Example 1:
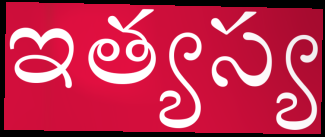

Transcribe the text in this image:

ఇత్యస్య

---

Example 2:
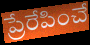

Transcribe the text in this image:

ప్రేరేపించే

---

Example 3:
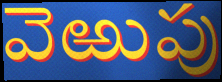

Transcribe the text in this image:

వెఱుపు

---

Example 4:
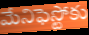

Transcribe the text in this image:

మేనిఫెస్టోకు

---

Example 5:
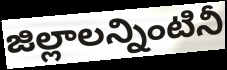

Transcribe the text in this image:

జిల్లాలన్నింటినీ